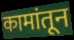
कामांतून